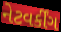
નેટવર્કીંગ